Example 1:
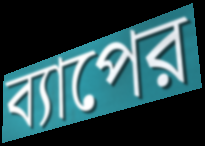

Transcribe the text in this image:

ব্যাপের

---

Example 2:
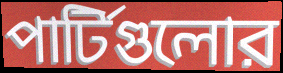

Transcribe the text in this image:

পার্টিগুলোর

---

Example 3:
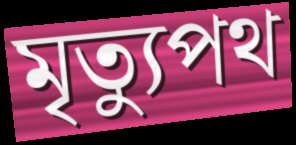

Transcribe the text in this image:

মৃত্যুপথ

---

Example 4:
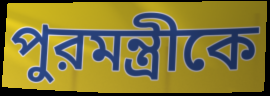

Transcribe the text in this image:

পুরমন্ত্রীকে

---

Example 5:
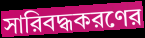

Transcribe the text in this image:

সারিবদ্ধকরণের